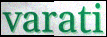
varati